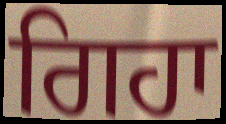
ਗਿਹਾ